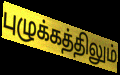
புழுக்கத்திலும்